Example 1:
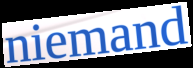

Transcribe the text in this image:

niemand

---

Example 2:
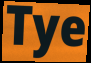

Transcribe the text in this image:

Tye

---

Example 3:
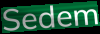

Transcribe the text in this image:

Sedem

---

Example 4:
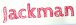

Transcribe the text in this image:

Jackman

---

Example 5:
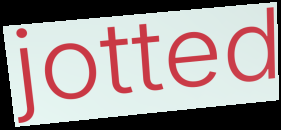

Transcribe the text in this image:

jotted